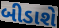
બીડાશે